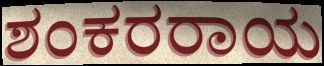
ಶಂಕರರಾಯ